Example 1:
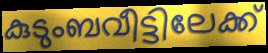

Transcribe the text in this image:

കുടുംബവീട്ടിലേക്ക്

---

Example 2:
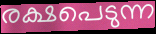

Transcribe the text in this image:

രക്ഷപെടുന്ന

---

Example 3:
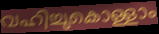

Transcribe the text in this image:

വഹിച്ചുകൊള്ളാം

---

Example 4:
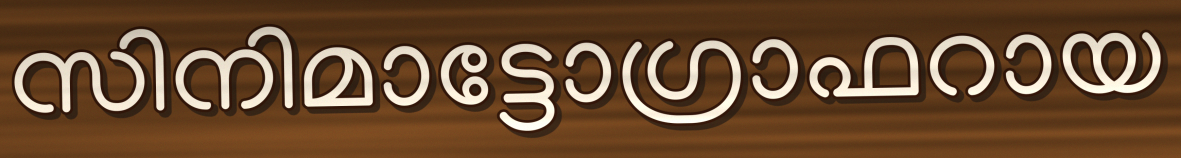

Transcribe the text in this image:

സിനിമാട്ടോഗ്രാഫറായ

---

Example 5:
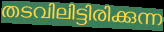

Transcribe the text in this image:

തടവിലിട്ടിരിക്കുന്ന